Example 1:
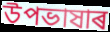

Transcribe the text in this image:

উপভাষাৰ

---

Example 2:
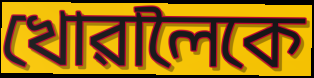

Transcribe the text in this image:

খোৱালৈকে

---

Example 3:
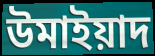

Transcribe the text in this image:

উমাইয়াদ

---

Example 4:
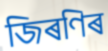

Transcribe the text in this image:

জিৰণিৰ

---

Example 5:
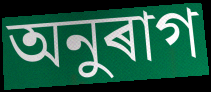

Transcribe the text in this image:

অনুৰাগ